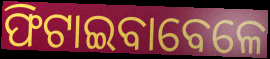
ଫିଟାଇବାବେଳେ